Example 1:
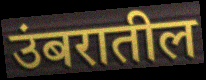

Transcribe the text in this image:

उंबरातील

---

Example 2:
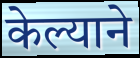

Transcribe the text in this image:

केल्‍याने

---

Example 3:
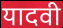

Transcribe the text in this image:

यादवी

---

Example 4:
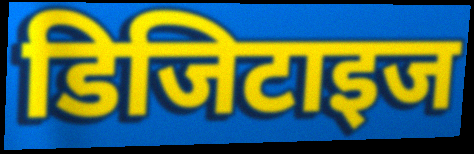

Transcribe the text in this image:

डिजिटाइज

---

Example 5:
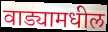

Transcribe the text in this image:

वाड्यामधील